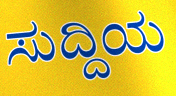
ಸುದ್ದಿಯ